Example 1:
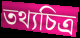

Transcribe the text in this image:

তথ্যচিত্র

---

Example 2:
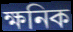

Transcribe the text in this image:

ক্ষনিক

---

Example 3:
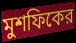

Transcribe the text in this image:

মুশফিকের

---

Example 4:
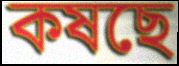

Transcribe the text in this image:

কষছে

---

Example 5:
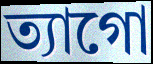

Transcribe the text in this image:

ত্যাগো